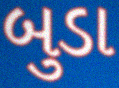
બુડા